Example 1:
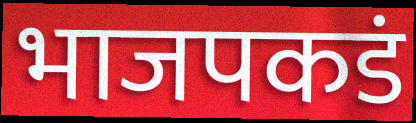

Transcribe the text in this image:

भाजपकडं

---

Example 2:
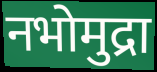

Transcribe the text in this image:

नभोमुद्रा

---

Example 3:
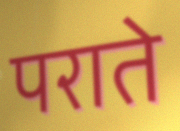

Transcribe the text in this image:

पराते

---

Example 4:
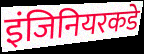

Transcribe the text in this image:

इंजिनियरकडे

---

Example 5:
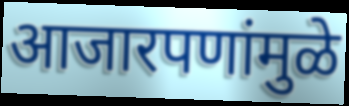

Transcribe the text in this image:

आजारपणांमुळे